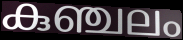
കുഞ്ചലം